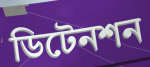
ডিটেনশন